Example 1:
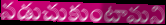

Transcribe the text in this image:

నడుచుకుంటామని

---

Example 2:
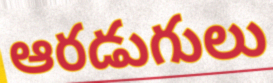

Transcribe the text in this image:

ఆరడుగులు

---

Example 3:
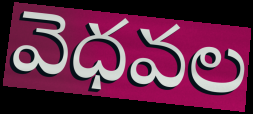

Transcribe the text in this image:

వెధవల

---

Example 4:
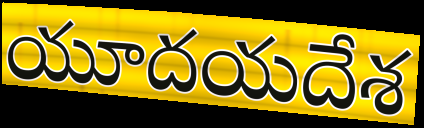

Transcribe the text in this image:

యూదయదేశ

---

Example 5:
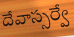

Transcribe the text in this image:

దేవాస్సర్వే